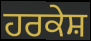
ਹਰਕੇਸ਼